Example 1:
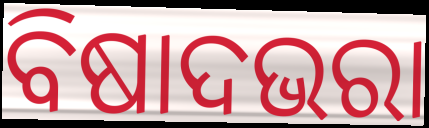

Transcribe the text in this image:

ବିଷାଦଭରା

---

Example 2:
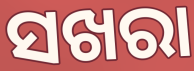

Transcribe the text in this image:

ସଖରା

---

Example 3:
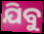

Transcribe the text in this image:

ଯିବୁ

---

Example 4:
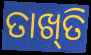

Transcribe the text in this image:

ତାଖ୍‍ତି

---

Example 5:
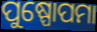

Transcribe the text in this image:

ପୁଷ୍ପୋପମା